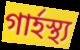
গার্হস্থ্য